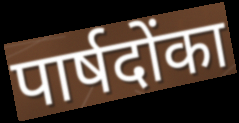
पार्षदोंका